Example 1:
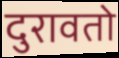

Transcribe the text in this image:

दुरावतो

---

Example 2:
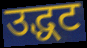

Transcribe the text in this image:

उद्धट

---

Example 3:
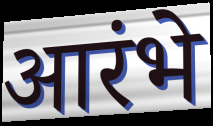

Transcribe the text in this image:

आरंभे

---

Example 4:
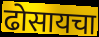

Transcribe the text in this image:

ढोसायचा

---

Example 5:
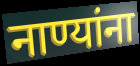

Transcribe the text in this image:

नाण्यांना